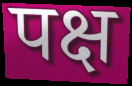
पक्ष